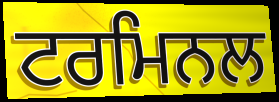
ਟਰਮਿਨਲ